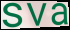
sva